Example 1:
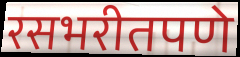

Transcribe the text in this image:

रसभरीतपणे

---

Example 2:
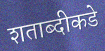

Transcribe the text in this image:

शताब्दीकडे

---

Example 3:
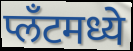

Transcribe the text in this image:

प्लँटमध्ये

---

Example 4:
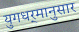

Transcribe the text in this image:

युगधर्मानुसार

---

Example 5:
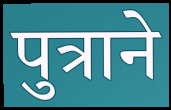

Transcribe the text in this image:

पुत्राने